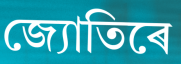
জ্যোতিৰে